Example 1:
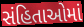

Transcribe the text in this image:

સંહિતાઓમાં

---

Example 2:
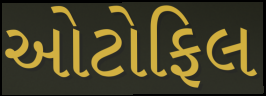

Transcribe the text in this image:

ઓટોફિલ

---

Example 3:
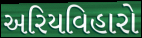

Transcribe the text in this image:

અરિયવિહારો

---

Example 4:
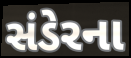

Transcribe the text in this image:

સંડેરના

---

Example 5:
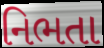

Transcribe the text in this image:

નિભતા